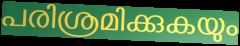
പരിശ്രമിക്കുകയും